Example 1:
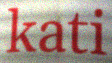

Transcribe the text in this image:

kati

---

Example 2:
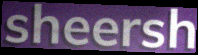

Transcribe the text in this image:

sheersh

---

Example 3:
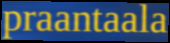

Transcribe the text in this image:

praantaala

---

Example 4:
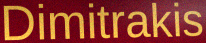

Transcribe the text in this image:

Dimitrakis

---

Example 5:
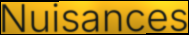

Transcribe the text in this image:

Nuisances